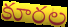
కూరల